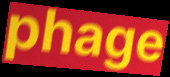
phage